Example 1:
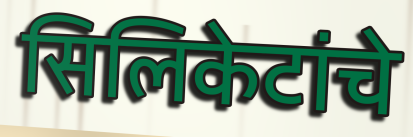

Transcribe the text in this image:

सिलिकेटांचे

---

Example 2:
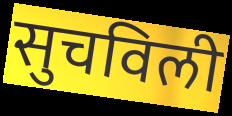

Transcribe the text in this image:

सुचविली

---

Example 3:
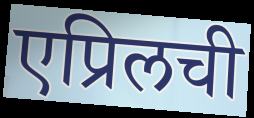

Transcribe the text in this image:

एप्रिलची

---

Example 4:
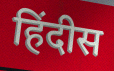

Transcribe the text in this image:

हिंदीस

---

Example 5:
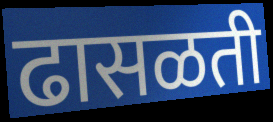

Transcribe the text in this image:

ढासळती